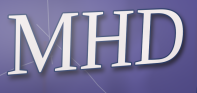
MHD